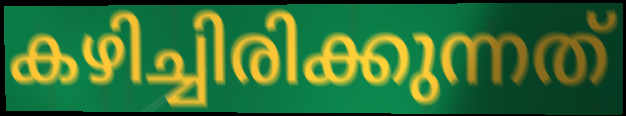
കഴിച്ചിരിക്കുന്നത്